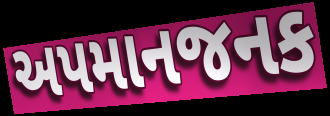
અપમાનજનક